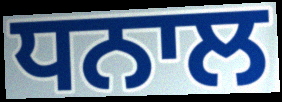
ਧਨਾਲ